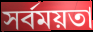
সর্বময়তা